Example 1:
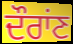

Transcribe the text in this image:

ਦੌਰਾਂਣ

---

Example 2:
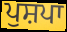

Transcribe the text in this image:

ਪੁਸ਼ਪਾ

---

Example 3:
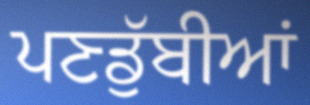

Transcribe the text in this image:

ਪਣਡੁੱਬੀਆਂ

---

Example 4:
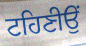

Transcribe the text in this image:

ਟਹਿਣੀਉਂ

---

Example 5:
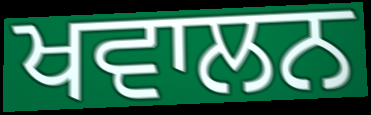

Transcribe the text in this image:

ਖਵਾਲਨ